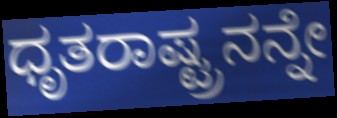
ಧೃತರಾಷ್ಟ್ರನನ್ನೇ